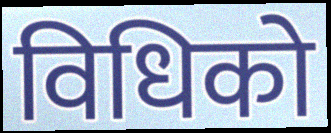
विधिको